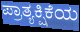
ಪ್ರಾತ್ಯಕ್ಷಿಕೆಯ